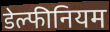
डेल्फीनियम